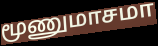
மூணுமாசமா